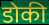
डोकी